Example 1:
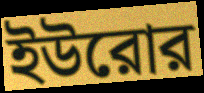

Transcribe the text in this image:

ইউরোর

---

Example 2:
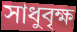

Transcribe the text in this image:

সাধুবৃক্ষ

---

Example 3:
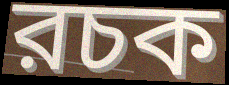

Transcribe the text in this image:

রচক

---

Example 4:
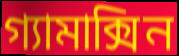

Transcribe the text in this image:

গ্যামাক্সিন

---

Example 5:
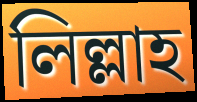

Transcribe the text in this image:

লিল্লাহ